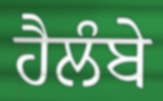
ਹੈਲੰਬੇ